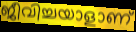
ജീവിച്ചയാളാണ്